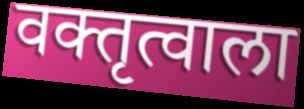
वक्तृत्वाला